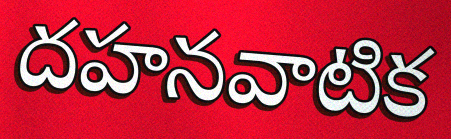
దహనవాటిక